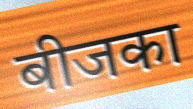
बीजका